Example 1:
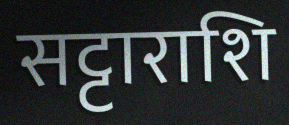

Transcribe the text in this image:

सट्टाराशि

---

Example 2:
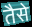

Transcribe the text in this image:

तैसे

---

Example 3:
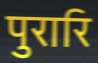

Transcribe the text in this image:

पुरारि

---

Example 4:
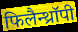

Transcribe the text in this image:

फिलैन्थ्रॉपी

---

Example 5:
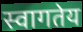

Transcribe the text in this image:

स्वागतेय